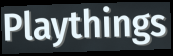
Playthings